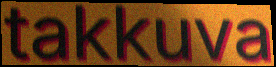
takkuva